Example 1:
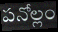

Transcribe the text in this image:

పనోల్లం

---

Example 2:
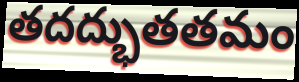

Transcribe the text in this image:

తదద్భుతతమం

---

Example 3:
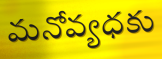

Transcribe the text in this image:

మనోవ్యధకు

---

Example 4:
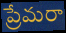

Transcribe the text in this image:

ప్రేమరా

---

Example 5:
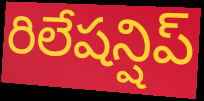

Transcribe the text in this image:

రిలేషన్షిప్